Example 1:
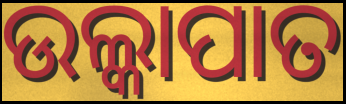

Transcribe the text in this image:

ଉଲ୍କାପାତ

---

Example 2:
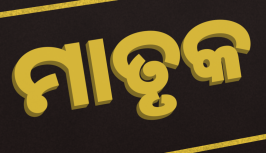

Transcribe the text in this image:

ମାତୃକ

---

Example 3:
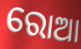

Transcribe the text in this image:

ରୋଆ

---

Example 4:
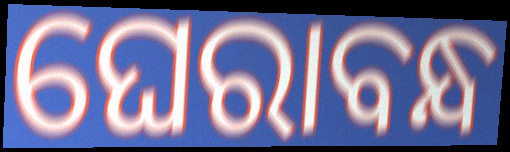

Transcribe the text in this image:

ଘେରାବନ୍ଧ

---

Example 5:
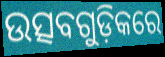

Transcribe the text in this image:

ଉତ୍ସବଗୁଡ଼ିକରେ